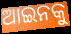
ଆଇନକୁ